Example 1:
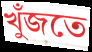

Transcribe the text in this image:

খুঁজতে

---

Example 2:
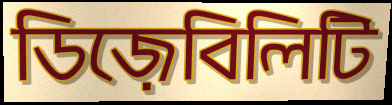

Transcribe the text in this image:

ডিজ়েবিলিটি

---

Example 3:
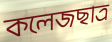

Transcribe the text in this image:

কলেজছাত্র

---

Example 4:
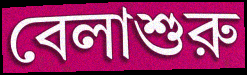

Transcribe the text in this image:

বেলাশুরু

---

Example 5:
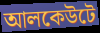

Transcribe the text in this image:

আলকেউটে